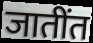
जातींत